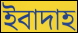
ইবাদাহ